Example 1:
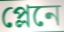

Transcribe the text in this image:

প্লেনে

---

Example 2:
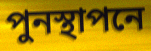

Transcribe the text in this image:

পুনস্থাপনে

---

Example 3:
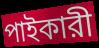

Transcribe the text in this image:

পাইকারী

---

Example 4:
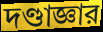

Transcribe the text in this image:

দণ্ডাজ্ঞার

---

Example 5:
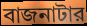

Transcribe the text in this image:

বাজনাটার